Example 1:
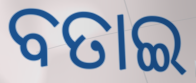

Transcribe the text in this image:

ବତାଇ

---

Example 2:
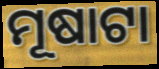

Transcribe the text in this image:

ମୂଷାଟା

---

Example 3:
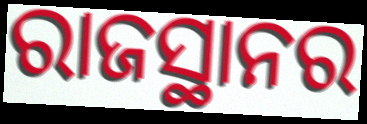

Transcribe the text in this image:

ରାଜସ୍ଥାନର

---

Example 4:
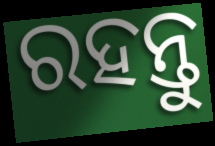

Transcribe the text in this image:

ରହନ୍ତୁ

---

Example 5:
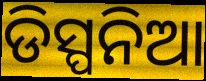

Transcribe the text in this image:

ଡିସ୍ପନିଆ